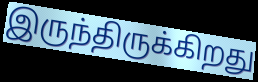
இருந்திருக்கிறது